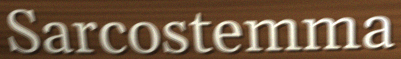
Sarcostemma